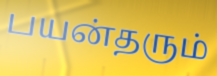
பயன்தரும்